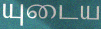
யுடைய